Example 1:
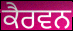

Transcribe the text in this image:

ਕੈਰਵਨ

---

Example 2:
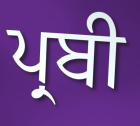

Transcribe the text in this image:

ਪ੍ਰਬੀ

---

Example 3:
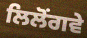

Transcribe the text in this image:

ਲਿਲੋਂਗਵੇ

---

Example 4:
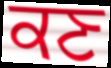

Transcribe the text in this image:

ਕਣ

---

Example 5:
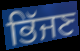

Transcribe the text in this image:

ਭਿੱਜਣ